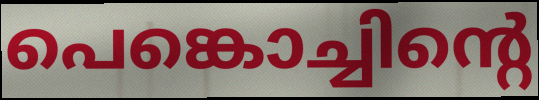
പെങ്കൊച്ചിന്റെ